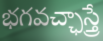
భగవచ్ఛాస్త్రే